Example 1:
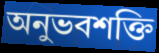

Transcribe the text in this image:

অনুভবশক্তি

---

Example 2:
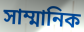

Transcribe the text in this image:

সাম্মানিক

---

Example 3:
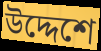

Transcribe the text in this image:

উদ্দেশে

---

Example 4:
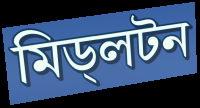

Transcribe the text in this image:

মিড্লটন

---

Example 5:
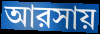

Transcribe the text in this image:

আরসায়